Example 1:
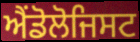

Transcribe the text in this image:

ਐਂਡੋਲੋਜਿਸਟ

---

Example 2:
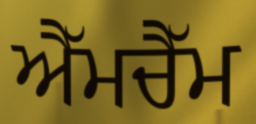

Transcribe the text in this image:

ਐੱਮਚੈੱਮ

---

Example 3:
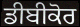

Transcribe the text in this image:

ਡੀਬੀਕੋਰ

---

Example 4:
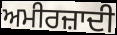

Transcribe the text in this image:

ਅਮੀਰਜ਼ਾਦੀ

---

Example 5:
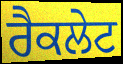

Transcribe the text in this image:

ਰੈਕਲੇਟ